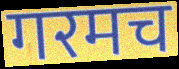
गरमच